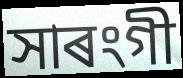
সাৰংগী